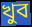
খুব